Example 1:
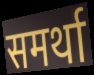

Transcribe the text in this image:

समर्था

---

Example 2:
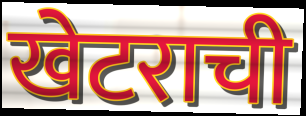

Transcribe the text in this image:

खेटराची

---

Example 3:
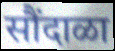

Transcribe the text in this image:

सौंदाळा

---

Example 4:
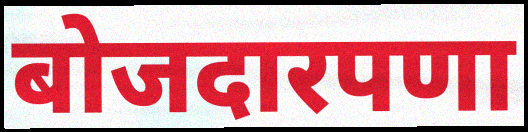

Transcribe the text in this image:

बोजदारपणा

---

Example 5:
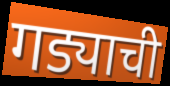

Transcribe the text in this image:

गड्याची